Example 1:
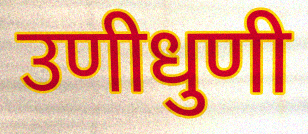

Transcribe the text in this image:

उणीधुणी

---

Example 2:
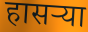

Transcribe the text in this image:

हासऱ्या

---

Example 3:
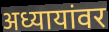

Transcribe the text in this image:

अध्यायांवर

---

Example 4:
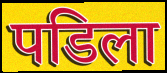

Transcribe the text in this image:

पडिला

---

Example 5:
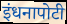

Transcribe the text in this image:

इंधनापोटी